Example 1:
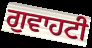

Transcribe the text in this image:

ਗੁਵਾਹਟੀ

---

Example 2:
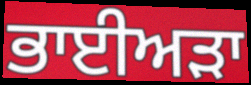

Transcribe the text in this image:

ਭਾਈਅੜਾ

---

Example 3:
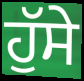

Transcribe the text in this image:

ਹੁੱਸੇ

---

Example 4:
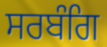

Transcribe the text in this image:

ਸਰਬੰਗਿ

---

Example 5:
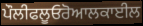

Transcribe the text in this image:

ਪੌਲੀਫਲੂਓਰੋਆਲਕਾਈਲ